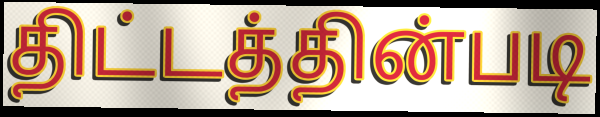
திட்டத்தின்படி